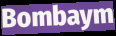
Bombaym